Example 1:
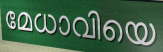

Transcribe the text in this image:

മേധാവിയെ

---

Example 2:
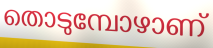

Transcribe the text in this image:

തൊടുമ്പോഴാണ്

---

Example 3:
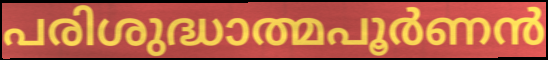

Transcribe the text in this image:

പരിശുദ്ധാത്മപൂർണൻ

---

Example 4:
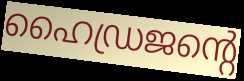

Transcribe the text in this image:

ഹൈഡ്രജന്റെ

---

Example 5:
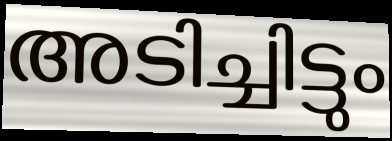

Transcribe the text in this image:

അടിച്ചിട്ടും